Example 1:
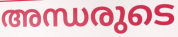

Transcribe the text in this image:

അന്ധരുടെ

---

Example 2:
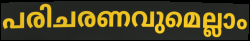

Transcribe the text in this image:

പരിചരണവുമെല്ലാം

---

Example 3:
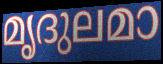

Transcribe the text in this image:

മൃദുലമാ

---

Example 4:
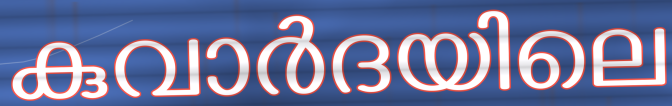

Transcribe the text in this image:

കുവാർദയിലെ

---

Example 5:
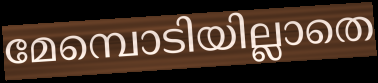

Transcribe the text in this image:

മേമ്പൊടിയില്ലാതെ